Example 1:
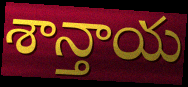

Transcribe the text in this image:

శాన్తాయ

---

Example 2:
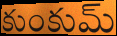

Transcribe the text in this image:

కుంకుమ్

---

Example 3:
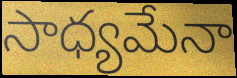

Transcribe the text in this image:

సాధ్యమేనా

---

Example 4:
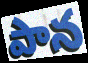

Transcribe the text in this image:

పాన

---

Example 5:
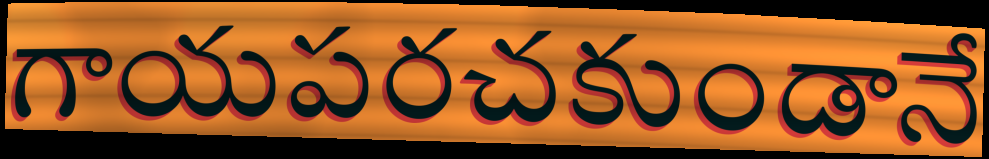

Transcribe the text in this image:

గాయపరచకుండానే